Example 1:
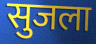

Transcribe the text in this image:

सुजला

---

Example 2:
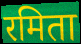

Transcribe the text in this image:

रमिता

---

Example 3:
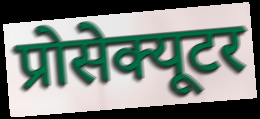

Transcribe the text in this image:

प्रोसेक्यूटर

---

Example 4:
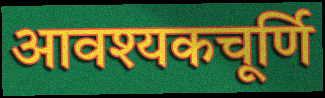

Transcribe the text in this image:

आवश्यकचूर्णि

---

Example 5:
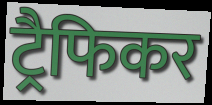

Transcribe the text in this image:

ट्रैफिकर